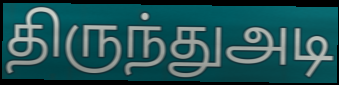
திருந்துஅடி